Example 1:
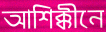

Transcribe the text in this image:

আশিক্কীনে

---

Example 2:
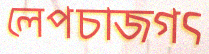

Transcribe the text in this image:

লেপচাজগৎ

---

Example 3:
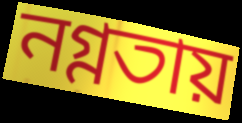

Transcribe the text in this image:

নগ্নতায়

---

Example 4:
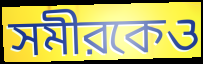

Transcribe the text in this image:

সমীরকেও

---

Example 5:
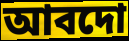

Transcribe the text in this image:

আবদো